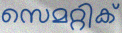
സെമറ്റിക്